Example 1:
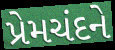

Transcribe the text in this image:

પ્રેમચંદને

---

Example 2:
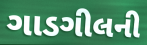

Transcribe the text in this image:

ગાડગીલની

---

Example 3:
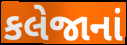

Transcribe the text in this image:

કલેજાનાં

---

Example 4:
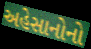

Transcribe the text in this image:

અહેસાનોનો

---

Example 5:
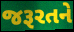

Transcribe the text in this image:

જરૂરતને